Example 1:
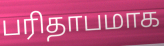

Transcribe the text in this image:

பரிதாபமாக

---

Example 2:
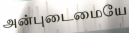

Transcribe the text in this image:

அன்புடைமையே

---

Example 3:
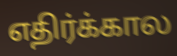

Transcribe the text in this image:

எதிர்க்கால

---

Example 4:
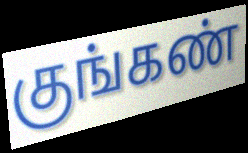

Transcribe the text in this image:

குங்கண்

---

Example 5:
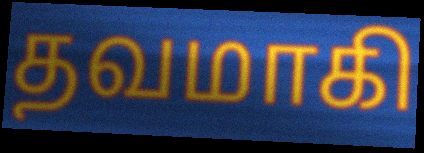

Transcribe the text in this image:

தவமாகி